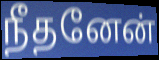
நீதனேன்